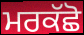
ਮਰਕੱਛੋ